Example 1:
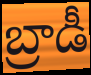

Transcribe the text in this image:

బ్రాడీ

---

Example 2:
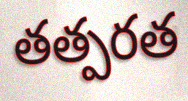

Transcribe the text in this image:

తత్పరత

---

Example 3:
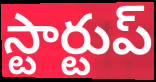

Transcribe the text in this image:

స్టార్టుప్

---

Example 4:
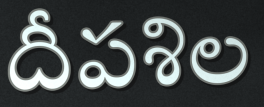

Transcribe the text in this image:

దీపశిల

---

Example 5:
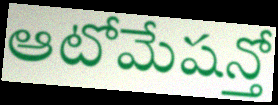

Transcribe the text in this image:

ఆటోమేషన్తో